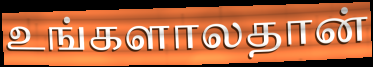
உங்களாலதான்